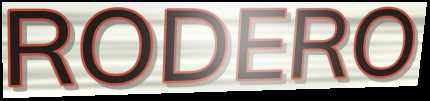
RODERO